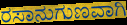
ರಸಾನುಗುಣವಾಗಿ